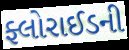
ફ્લોરાઈડની